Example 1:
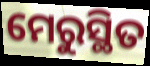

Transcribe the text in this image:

ମେରୁସ୍ଥିତ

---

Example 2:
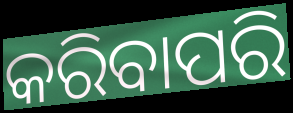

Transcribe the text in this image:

କରିବାପରି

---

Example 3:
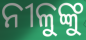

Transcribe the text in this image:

ନୀଳୁଙ୍କୁ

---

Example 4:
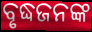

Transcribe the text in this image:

ବୃଦ୍ଧଜନଙ୍କ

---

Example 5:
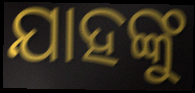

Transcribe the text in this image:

ଯାହଙ୍କୁ